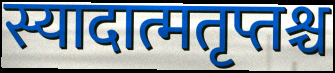
स्यादात्मतृप्तश्च